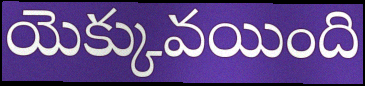
యెక్కువయింది